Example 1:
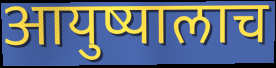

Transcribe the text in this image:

आयुष्यालाच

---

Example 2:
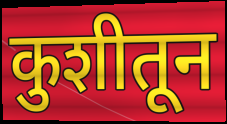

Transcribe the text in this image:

कुशीतून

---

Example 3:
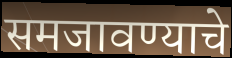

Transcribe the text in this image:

समजावण्याचे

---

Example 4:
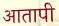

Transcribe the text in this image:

आतापी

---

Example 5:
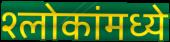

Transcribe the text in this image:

श्लोकांमध्ये